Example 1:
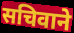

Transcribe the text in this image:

सचिवाने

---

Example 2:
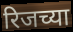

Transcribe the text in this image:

रिजच्या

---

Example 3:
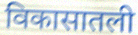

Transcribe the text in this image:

विकासातली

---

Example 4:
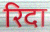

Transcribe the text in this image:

रिदा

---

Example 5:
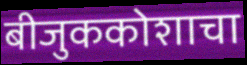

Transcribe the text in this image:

बीजुककोशाचा